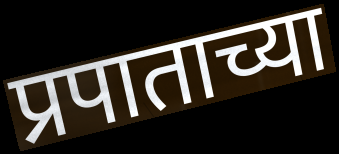
प्रपाताच्या